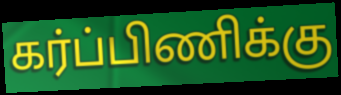
கர்ப்பிணிக்கு